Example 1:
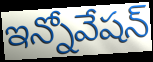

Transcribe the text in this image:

ఇన్నోవేషన్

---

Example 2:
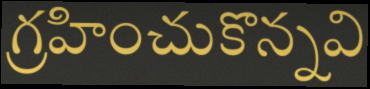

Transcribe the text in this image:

గ్రహించుకొన్నవి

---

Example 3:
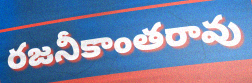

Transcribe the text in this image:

రజనీకాంతరావు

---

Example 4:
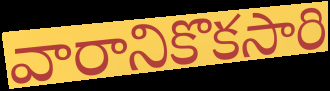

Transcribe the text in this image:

వారానికొకసారి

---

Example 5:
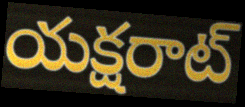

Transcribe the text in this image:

యక్షరాట్